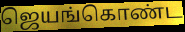
ஜெயங்கொண்ட